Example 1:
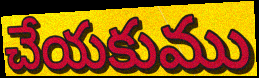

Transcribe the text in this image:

చేయకుము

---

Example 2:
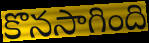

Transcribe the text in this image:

కొనసాగింది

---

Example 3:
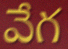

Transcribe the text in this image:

వేగ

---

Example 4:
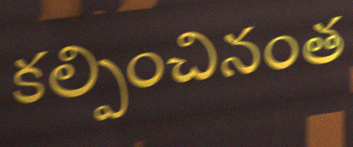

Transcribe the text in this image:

కల్పించినంత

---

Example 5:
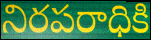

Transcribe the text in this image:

నిరపరాధికి